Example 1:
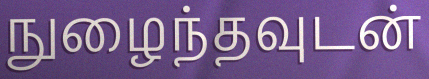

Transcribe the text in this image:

நுழைந்தவுடன்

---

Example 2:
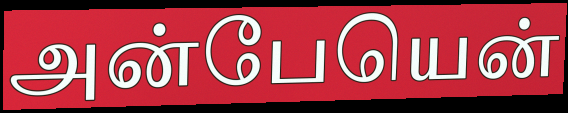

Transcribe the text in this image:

அன்பேயென்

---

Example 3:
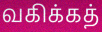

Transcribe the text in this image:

வகிக்கத்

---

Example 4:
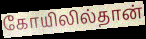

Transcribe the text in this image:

கோயிலில்தான்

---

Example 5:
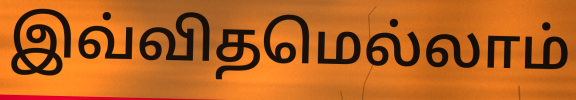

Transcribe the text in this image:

இவ்விதமெல்லாம்